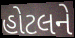
હોટલને